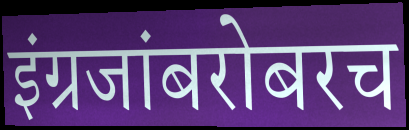
इंग्रजांबरोबरच